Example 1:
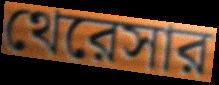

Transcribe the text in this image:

থেরেসার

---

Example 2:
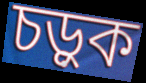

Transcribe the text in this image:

চড়ুক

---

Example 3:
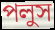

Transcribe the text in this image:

পলুস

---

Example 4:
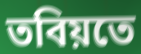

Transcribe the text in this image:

তবিয়তে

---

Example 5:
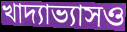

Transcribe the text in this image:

খাদ্যাভ্যাসও